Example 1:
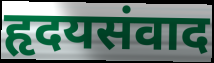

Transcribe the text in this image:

हृदयसंवाद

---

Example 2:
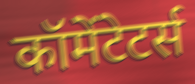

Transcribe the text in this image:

कॉमेंटेटर्स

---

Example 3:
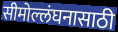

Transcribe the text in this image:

सीमोल्लंघनासाठी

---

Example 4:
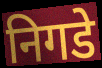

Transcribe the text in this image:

निगडे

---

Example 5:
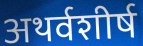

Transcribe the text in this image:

अथर्वशीर्ष